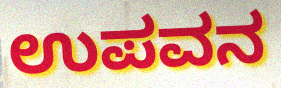
ಉಪವನ